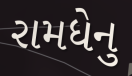
રામધેનુ